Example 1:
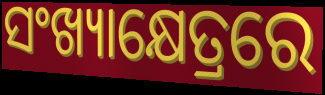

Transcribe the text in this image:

ସଂଖ୍ୟାକ୍ଷେତ୍ରରେ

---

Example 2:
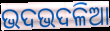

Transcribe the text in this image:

ଭଦଭଦଳିଆ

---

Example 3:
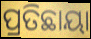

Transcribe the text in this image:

ପ୍ରତିଛାୟା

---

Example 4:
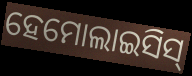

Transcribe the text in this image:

ହେମୋଲାଇସିସ୍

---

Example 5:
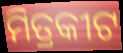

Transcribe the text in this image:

ମିତ୍ରକୀଟ